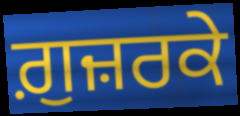
ਗ਼ੁਜ਼ਰਕੇ